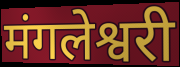
मंगलेश्वरी